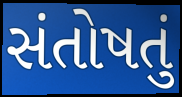
સંતોષતું